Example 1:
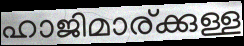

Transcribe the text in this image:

ഹാജിമാര്ക്കുള്ള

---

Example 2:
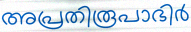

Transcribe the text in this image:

അപ്രതിരൂപാഭിർ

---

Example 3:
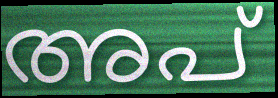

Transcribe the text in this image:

അപ്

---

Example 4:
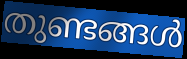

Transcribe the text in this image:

തുണ്ടങ്ങൾ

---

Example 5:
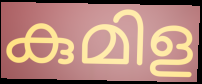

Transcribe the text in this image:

കുമിള